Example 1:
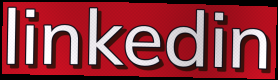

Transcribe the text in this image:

linkedin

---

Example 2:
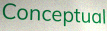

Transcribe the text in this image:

Conceptual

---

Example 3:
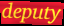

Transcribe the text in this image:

deputy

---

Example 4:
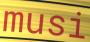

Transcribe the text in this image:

musi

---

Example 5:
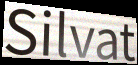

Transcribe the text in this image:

Silvat